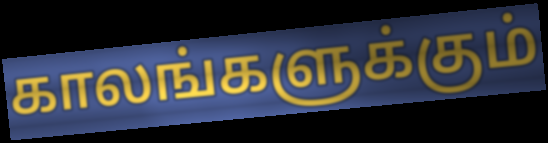
காலங்களுக்கும்